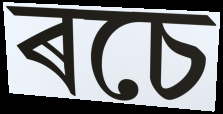
ৰচে